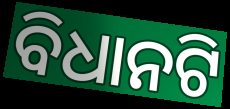
ବିଧାନଟି